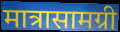
मात्रासामग्री